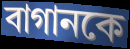
বাগানকে